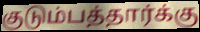
குடும்பத்தார்க்கு